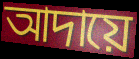
আদায়ে